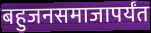
बहुजनसमाजापर्यंत